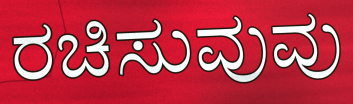
ರಚಿಸುವುವು